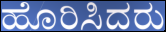
ಹೊರಿಸಿದರು